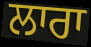
ਲਾਰਾ